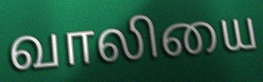
வாலியை